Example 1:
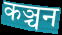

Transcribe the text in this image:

कञ्चन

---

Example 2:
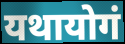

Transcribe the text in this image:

यथायोगं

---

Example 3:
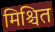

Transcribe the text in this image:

मिश्चित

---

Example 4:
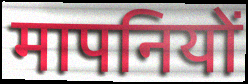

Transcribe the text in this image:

मापनियों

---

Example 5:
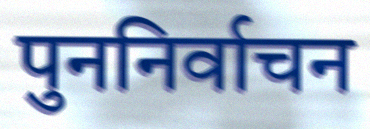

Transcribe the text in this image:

पुननिर्वाचन